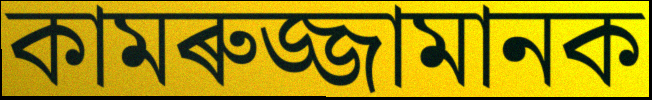
কামৰুজ্জামানক